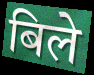
बिले